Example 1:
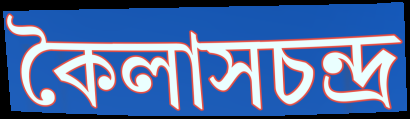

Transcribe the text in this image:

কৈলাসচন্দ্র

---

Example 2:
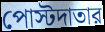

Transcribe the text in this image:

পোস্টদাতার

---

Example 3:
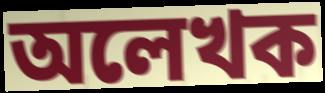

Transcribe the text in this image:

অলেখক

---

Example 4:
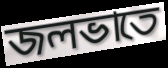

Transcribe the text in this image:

জলভাতে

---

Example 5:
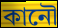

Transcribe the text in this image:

কানৌ